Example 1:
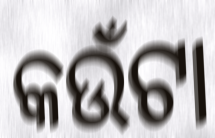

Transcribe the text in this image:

କଉଁଟା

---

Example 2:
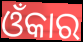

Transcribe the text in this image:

ଓଁକାର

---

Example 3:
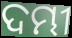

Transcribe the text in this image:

ଦମ୍ଭୀ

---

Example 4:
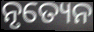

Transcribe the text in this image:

ନୃତ୍ୟେନ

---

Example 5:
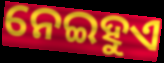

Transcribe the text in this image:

ନେଇହୁଏ